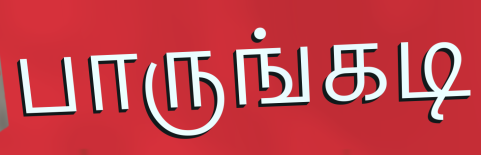
பாருங்கடி